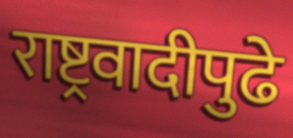
राष्ट्रवादीपुढे